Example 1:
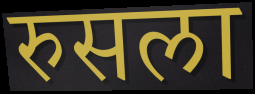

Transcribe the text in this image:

रुसला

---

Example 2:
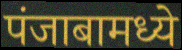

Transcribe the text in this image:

पंजाबामध्ये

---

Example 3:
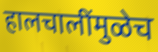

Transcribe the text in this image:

हालचालींमुळेच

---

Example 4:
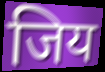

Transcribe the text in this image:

जिय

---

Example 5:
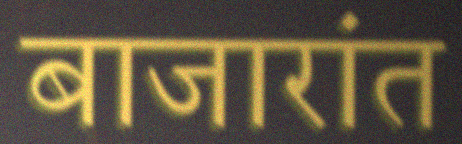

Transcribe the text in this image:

बाजारांत